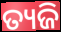
ତ୍ୟଜି